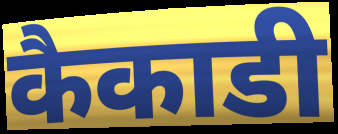
कैकाडी